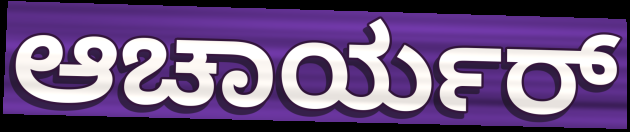
ಆಚಾರ್ಯರ್